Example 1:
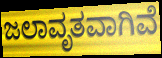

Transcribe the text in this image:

ಜಲಾವೃತವಾಗಿವೆ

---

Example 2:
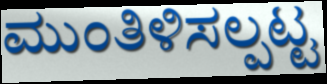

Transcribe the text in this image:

ಮುಂತಿಳಿಸಲ್ಪಟ್ಟ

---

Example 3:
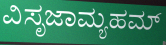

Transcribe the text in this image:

ವಿಸೃಜಾಮ್ಯಹಮ್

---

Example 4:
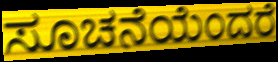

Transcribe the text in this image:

ಸೂಚನೆಯೆಂದರೆ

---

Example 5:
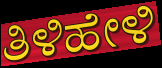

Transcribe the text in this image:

ತಿಳಿಹೇಳಿ